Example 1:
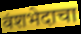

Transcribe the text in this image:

वंशभेदाचा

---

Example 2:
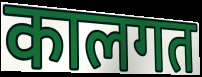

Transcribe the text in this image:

कालगत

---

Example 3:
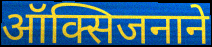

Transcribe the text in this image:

ऑक्सिजनाने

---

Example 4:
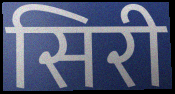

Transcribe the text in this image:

सिरी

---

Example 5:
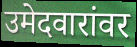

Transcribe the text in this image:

उमेदवारांवर